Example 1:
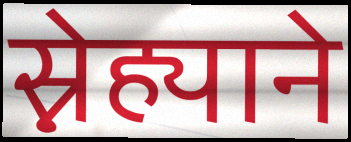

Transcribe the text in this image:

स्नेह्याने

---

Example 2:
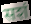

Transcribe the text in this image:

सशं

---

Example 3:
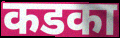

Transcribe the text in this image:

कडका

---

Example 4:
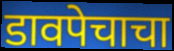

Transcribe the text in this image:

डावपेचाचा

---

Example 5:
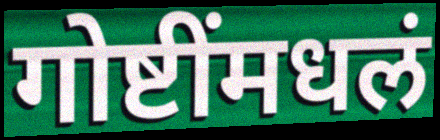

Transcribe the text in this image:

गोष्टींमधलं